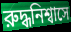
রুদ্ধনিশ্বাসে